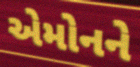
એમોનને